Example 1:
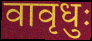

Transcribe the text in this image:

वावृधुः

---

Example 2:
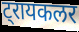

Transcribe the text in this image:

ट्रायकलर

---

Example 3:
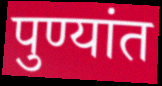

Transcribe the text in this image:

पुण्यांत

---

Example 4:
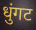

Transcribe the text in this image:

धुंगट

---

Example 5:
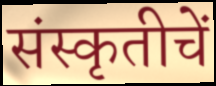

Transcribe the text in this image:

संस्कृतीचें